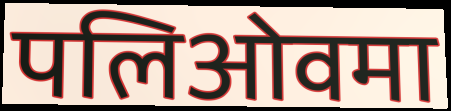
पलिओवमा